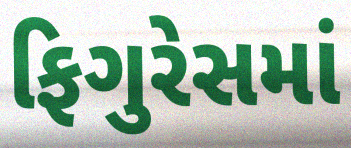
ફિગુરેસમાં